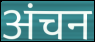
अंचन